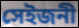
সেইজনী